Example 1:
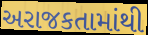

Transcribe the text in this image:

અરાજકતામાંથી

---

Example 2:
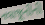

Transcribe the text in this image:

નવાજૂનીની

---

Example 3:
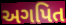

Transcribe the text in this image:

અગપિત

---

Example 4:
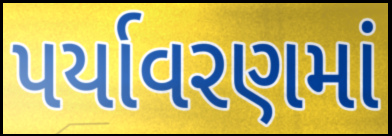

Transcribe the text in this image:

પર્યાવરણમાં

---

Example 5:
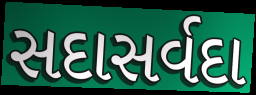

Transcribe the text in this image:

સદાસર્વદા